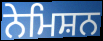
ਨੇਮਿਸ਼ਨ